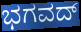
ಭಗವದ್